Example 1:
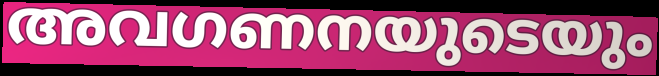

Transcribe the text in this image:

അവഗണനയുടെയും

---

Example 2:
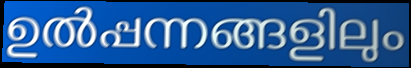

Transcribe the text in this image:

ഉൽപ്പന്നങ്ങളിലും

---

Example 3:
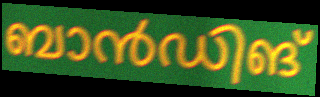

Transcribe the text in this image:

ബാൻഡിങ്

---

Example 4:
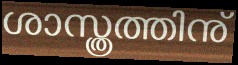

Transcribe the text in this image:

ശാസ്ത്രത്തിനു്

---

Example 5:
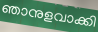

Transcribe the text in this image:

ഞാനുളവാക്കി